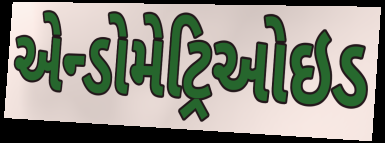
એન્ડોમેટ્રિઓઇડ